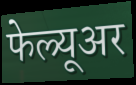
फेल्यूअर